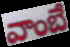
వాంబే